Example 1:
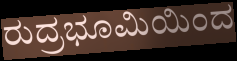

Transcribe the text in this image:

ರುದ್ರಭೂಮಿಯಿಂದ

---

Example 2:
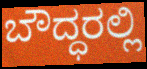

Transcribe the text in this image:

ಬೌದ್ಧರಲ್ಲಿ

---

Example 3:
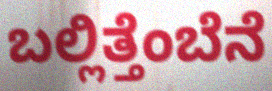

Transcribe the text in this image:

ಬಲ್ಲಿತ್ತೆಂಬೆನೆ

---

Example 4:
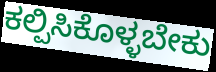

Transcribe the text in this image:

ಕಲ್ಪಿಸಿಕೊಳ್ಳಬೇಕು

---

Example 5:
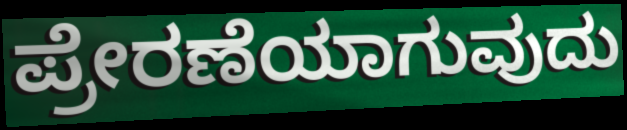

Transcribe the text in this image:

ಪ್ರೇರಣೆಯಾಗುವುದು